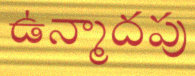
ఉన్మాదపు